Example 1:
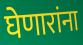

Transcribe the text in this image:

घेणारांना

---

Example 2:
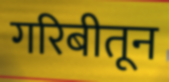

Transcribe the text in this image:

गरिबीतून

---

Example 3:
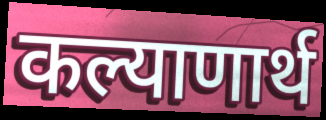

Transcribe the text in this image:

कल्याणार्थ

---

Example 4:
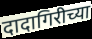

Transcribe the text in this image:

दादागिरीच्या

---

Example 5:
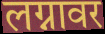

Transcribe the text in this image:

लग्नावर